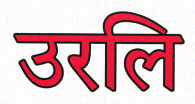
उरलि